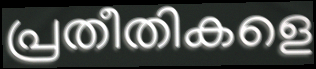
പ്രതീതികളെ